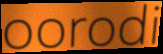
oorodi